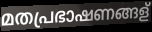
മതപ്രഭാഷണങ്ങള്